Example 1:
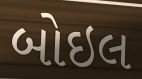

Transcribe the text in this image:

બોઇલ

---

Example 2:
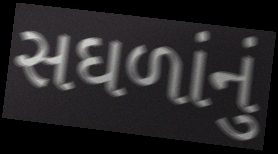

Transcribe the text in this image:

સઘળાંનું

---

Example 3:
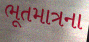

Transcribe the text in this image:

ભૂતમાત્રના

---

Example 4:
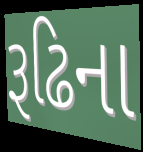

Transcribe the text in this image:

રૂઢિના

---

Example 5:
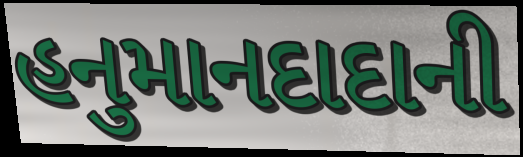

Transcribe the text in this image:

હનુમાનદાદાની